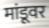
मांडूवर